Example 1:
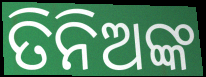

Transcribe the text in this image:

ତିନିଅଙ୍କ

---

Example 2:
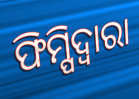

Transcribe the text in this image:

ଫିମ୍ପିଦ୍ଵାରା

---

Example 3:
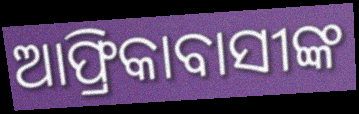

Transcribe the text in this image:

ଆଫ୍ରିକାବାସୀଙ୍କ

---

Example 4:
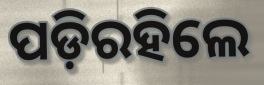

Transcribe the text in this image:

ପଡ଼ିରହିଲେ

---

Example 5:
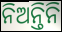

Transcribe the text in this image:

ନିଅନ୍ତିନି